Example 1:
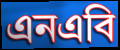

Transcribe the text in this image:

এনএবি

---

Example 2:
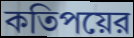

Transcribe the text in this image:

কতিপয়ের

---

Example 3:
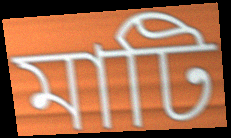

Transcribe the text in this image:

মাটি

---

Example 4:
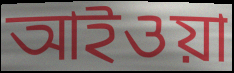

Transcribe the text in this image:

আইওয়া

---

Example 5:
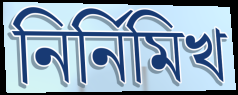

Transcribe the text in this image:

নির্নিমিখ